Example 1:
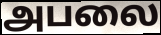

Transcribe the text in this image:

அபலை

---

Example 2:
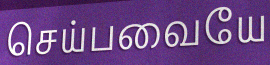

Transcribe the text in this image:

செய்பவையே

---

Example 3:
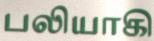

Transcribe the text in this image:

பலியாகி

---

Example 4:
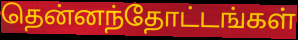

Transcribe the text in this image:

தென்னந்தோட்டங்கள்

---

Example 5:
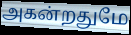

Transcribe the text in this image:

அகன்றதுமே